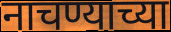
नाचण्याच्या